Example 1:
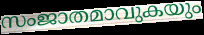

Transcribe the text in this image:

സംജാതമാവുകയും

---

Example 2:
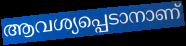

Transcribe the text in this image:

ആവശ്യപ്പെടാനാണ്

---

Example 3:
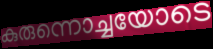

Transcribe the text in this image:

കുരുന്നൊച്ചയോടെ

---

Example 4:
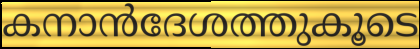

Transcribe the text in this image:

കനാൻദേശത്തുകൂടെ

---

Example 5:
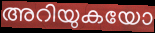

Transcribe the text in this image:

അറിയുകയോ